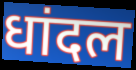
धांदल